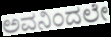
ಅವನಿಂದಲೇ